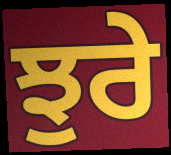
ਝੁਰੇ